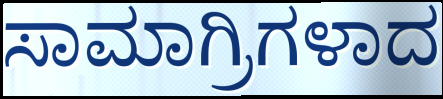
ಸಾಮಾಗ್ರಿಗಳಾದ